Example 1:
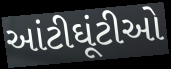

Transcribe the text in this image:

આંટીઘૂંટીઓ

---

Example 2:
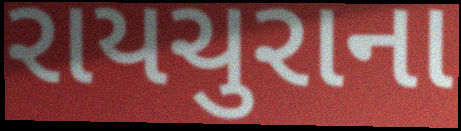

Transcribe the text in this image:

રાયચુરાના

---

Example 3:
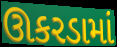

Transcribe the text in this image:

ઊકરડામાં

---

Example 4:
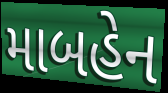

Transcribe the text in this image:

માબહેન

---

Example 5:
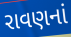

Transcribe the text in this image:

રાવણનાં